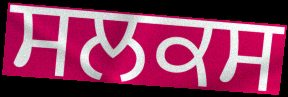
ਸਲਕਸ